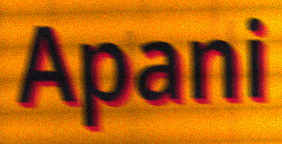
Apani